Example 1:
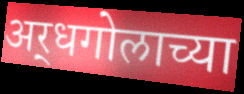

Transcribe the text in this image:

अर्धगोलाच्या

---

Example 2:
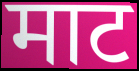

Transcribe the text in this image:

माट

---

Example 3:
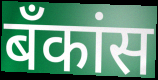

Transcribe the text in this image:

बँकांस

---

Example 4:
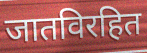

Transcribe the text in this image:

जातविरहित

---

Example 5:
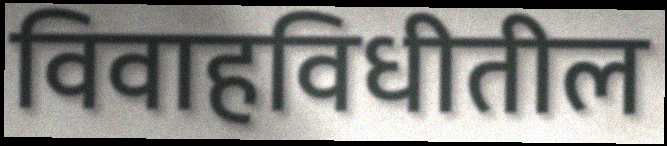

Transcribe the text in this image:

विवाहविधीतील